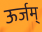
ऊर्जम्